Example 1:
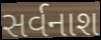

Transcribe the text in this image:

સર્વનાશ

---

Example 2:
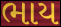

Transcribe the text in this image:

ભાય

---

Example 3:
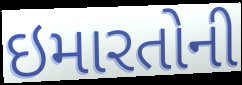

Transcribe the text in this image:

ઇમારતોની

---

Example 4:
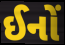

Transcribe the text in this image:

ઈનોં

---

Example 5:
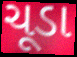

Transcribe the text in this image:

ચૂડા